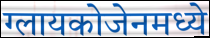
ग्लायकोजेनमध्ये